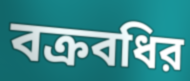
বক্রবধির